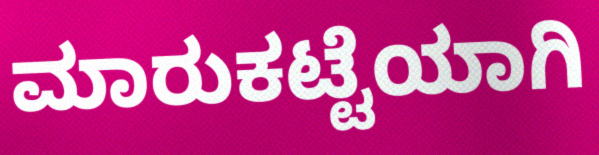
ಮಾರುಕಟ್ಟೆಯಾಗಿ